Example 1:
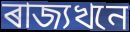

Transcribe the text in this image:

ৰাজ্যখনে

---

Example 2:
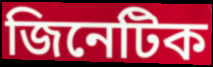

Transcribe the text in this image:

জিনেটিক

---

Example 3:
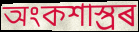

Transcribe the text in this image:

অংকশাস্ত্ৰৰ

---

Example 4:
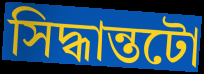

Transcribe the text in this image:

সিদ্ধান্তটো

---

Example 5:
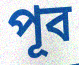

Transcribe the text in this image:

পূব